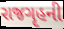
રાજગૃહની